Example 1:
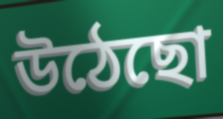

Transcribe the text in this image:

উঠেছো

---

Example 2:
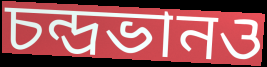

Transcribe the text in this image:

চন্দ্রভানও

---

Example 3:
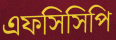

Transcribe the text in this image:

এফসিসিপি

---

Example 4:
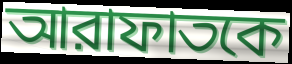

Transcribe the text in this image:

আরাফাতকে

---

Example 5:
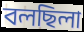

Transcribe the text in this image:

বলছিলা